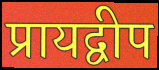
प्रायद्वीप